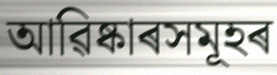
আৱিষ্কাৰসমূহৰ